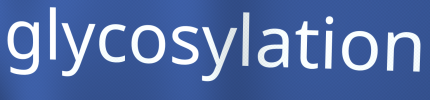
glycosylation